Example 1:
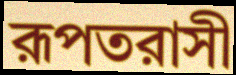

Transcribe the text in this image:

রূপতরাসী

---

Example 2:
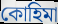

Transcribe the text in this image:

কোহিমা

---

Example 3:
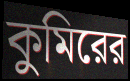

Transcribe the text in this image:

কুমিরের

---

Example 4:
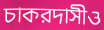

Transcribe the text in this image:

চাকরদাসীও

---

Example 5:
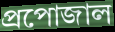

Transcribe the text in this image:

প্রপোজাল